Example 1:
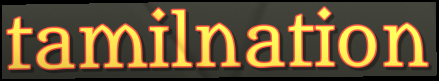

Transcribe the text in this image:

tamilnation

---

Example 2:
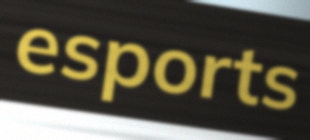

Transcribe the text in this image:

esports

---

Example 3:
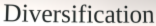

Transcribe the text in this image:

Diversification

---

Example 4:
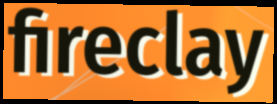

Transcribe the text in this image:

fireclay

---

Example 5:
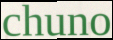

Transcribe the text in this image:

chuno